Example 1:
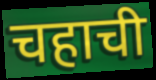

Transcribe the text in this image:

चहाची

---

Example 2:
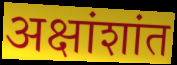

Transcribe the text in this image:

अक्षांशांत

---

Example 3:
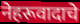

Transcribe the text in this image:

नेहरूवादाचे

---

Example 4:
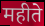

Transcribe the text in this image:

महीते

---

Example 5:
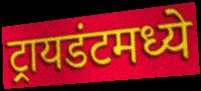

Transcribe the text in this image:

ट्रायडंटमध्ये